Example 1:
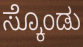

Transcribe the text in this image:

ಸ್ಕೊಂಡು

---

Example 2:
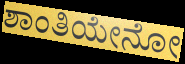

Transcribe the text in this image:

ಶಾಂತಿಯೇನೋ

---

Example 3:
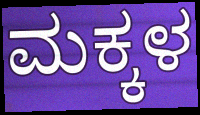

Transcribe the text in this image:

ಮಕ್ಕಳ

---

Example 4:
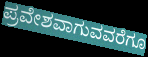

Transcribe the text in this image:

ಪ್ರವೇಶವಾಗುವವರೆಗೂ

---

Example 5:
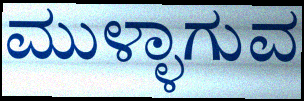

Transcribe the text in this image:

ಮುಳ್ಳಾಗುವ